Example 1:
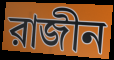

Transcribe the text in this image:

রাজীন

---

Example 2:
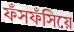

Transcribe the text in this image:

ফঁসফঁসিয়ে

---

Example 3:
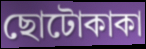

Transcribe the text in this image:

ছোটোকাকা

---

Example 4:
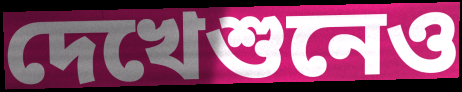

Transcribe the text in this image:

দেখেশুনেও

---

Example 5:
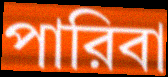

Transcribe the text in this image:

পারিবা